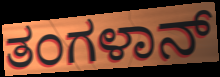
ತಂಗಳಾನ್